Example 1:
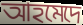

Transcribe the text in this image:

আহমেদে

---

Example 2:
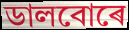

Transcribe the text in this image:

ডালবোৰে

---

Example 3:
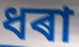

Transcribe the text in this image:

ধৰা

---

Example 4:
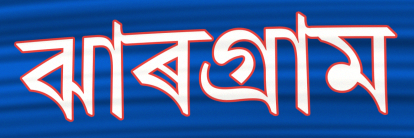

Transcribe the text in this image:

ঝাৰগ্ৰাম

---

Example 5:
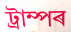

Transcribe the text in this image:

ট্ৰাম্পৰ